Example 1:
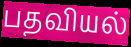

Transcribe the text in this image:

பதவியல்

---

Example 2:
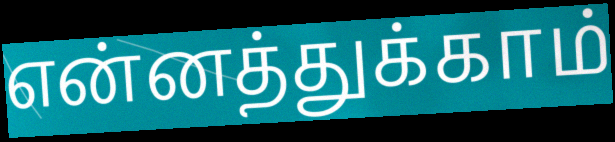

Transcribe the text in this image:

என்னத்துக்காம்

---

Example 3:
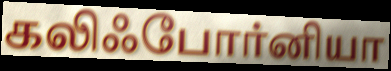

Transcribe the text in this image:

கலிஃபோர்னியா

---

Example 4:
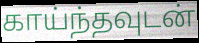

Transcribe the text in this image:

காய்ந்தவுடன்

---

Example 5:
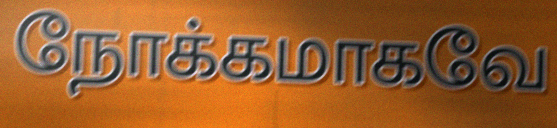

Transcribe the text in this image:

நோக்கமாகவே